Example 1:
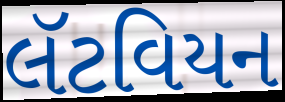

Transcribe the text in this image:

લૅટવિયન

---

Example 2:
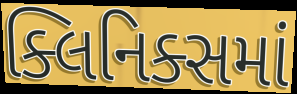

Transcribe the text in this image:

ક્લિનિક્સમાં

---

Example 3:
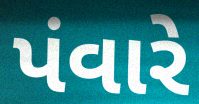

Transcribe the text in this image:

પંવારે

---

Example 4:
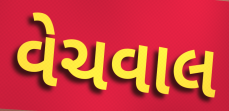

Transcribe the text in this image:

વેચવાલ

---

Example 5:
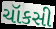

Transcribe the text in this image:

ચૉકસી